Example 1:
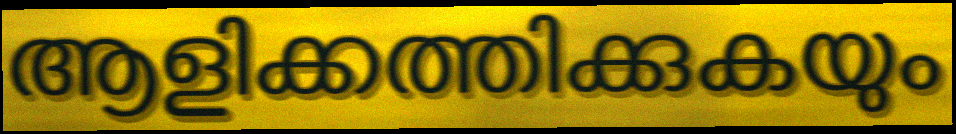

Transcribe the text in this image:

ആളിക്കത്തിക്കുകയും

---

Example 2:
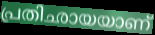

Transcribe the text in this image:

പ്രതിഛായയാണ്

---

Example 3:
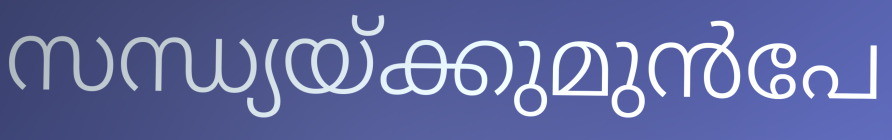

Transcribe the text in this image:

സന്ധ്യയ്ക്കുമുൻപേ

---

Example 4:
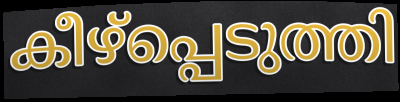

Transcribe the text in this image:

കീഴ്പ്പെടുത്തി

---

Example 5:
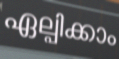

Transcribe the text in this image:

ഏല്പിക്കാം